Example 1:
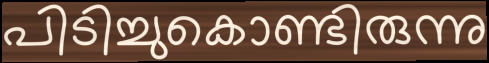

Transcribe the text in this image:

പിടിച്ചുകൊണ്ടിരുന്നു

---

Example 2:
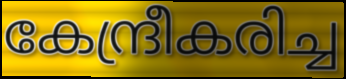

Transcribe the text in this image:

കേന്ദ്രീകരിച്ച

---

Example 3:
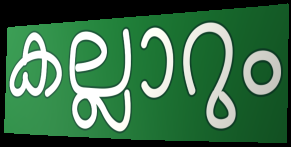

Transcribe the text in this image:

കല്ലാറും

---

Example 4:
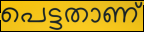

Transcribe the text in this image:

പെട്ടതാണ്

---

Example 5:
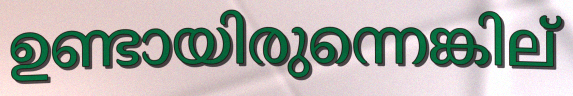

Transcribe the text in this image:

ഉണ്ടായിരുന്നെങ്കില്